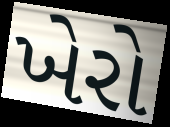
ખેરો